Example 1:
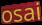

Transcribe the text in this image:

osai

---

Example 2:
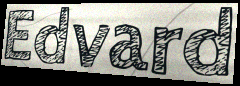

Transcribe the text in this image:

Edvard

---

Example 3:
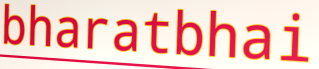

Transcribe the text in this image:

bharatbhai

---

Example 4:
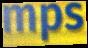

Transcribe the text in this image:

mps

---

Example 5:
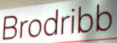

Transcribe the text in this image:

Brodribb